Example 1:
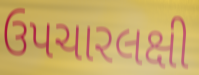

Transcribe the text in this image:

ઉપચારલક્ષી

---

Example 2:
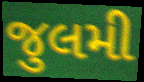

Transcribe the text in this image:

જુલમી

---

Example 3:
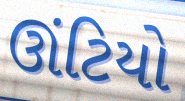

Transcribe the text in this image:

ઊંટિયો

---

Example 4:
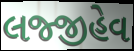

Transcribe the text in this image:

લજ્જીહેવ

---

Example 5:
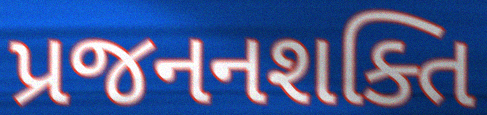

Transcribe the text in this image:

પ્રજનનશક્તિ